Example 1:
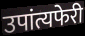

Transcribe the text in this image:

उपांत्यफेरी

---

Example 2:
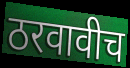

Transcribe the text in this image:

ठरवावीच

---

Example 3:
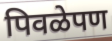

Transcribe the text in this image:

पिवळेपण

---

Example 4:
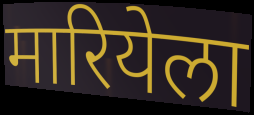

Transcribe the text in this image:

मारियेला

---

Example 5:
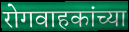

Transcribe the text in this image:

रोगवाहकांच्या